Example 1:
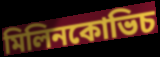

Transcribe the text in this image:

মিলিনকোভিচ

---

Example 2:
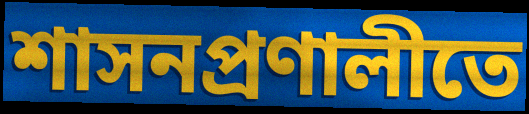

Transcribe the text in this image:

শাসনপ্রণালীতে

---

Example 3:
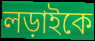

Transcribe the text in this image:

লড়াইকে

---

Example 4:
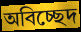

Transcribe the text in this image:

অবিচ্ছেদ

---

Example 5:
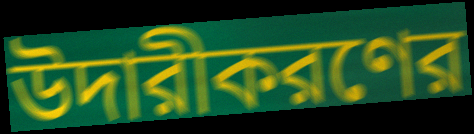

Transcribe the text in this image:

উদারীকরণের